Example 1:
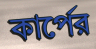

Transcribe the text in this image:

কার্পের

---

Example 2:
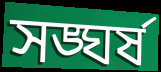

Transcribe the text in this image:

সঙ্ঘর্ষ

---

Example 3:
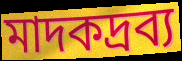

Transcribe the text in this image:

মাদকদ্রব্য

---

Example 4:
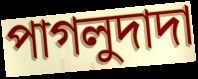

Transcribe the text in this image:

পাগলুদাদা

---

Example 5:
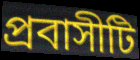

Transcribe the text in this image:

প্রবাসীটি